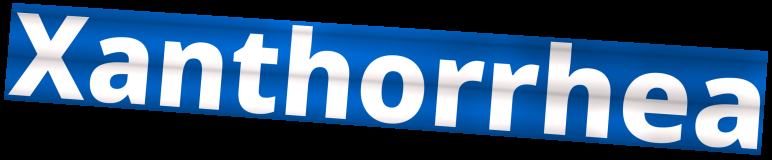
Xanthorrhea